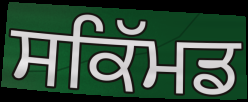
ਸਕਿੱਮਡ